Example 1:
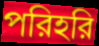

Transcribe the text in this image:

পরিহরি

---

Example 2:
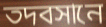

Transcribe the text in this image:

তদবসানে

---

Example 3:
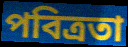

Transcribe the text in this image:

পবিত্রতা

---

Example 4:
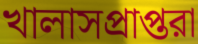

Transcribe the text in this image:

খালাসপ্রাপ্তরা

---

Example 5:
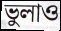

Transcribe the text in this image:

ভুলাও